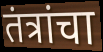
तंत्रांचा